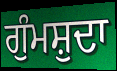
ਗੁੰਮਸ਼ੁਦਾ